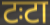
टःटा